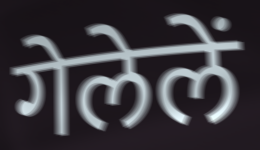
गेलेलें